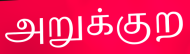
அறுக்குற